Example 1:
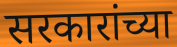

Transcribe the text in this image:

सरकारांच्या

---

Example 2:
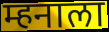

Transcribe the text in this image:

म्हनाला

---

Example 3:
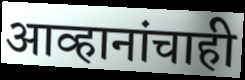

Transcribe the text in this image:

आव्हानांचाही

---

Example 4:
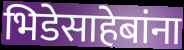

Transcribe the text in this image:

भिडेसाहेबांना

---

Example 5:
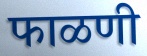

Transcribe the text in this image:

फाळणी